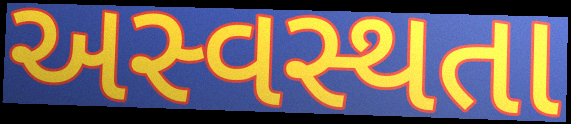
અસ્વસ્થતા